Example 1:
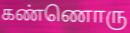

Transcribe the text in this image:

கண்ணொரு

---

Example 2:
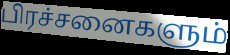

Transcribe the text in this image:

பிரச்சனைகளும்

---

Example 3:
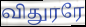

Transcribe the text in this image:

விதுரரே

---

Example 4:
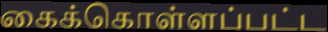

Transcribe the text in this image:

கைக்கொள்ளப்பட்ட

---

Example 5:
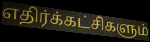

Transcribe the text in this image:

எதிர்க்கட்சிகளும்